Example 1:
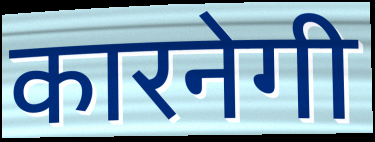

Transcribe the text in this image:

कारनेगी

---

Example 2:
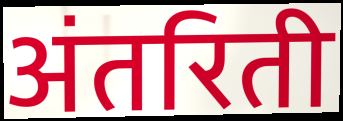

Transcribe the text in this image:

अंतरिती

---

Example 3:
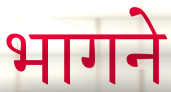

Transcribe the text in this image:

भागने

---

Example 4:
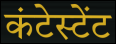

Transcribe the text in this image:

कंटेस्‍टेंट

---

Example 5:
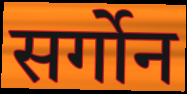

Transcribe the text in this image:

सर्गोन